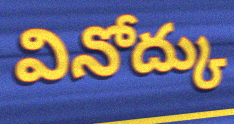
వినోద్కు